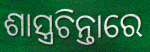
ଶାସ୍ତ୍ରଚିନ୍ତାରେ